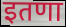
इतणा